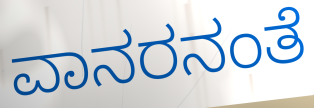
ವಾನರನಂತೆ